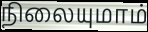
நிலையுமாம்